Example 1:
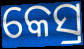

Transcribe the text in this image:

କେସ୍ର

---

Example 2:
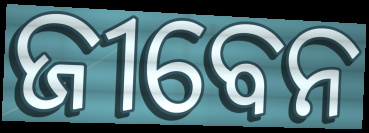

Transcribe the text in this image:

ଜୀବେନ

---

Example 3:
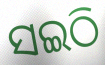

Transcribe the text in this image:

ସଇଠି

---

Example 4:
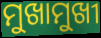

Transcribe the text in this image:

ମୁଖାମୁଖୀ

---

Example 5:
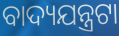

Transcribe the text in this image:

ବାଦ୍ୟଯନ୍ତ୍ରଟା